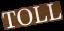
TOLL